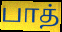
பாத்